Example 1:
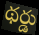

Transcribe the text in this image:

థర్డు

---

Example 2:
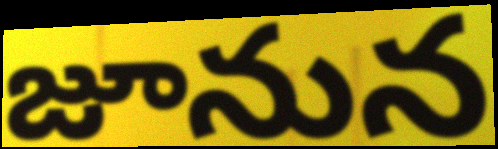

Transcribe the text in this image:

జూనున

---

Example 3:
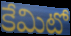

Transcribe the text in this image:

కేమిటో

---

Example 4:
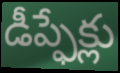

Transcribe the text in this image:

డీప్ఫేక్లు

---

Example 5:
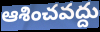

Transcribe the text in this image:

ఆశించవద్దు